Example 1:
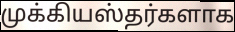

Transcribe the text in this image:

முக்கியஸ்தர்களாக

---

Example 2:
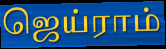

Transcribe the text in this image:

ஜெய்ராம்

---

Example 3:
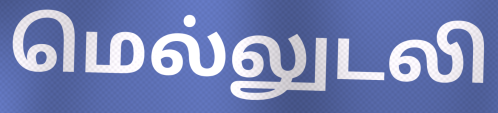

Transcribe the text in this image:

மெல்லுடலி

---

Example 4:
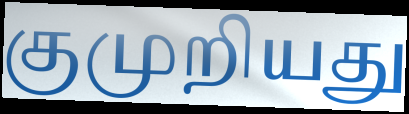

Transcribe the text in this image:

குமுறியது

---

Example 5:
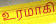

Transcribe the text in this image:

உரமாகி